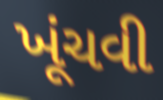
ખૂંચવી